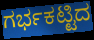
ಗರ್ಭಕಟ್ಟಿದ